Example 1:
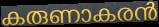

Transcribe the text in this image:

കരുണാകരൻ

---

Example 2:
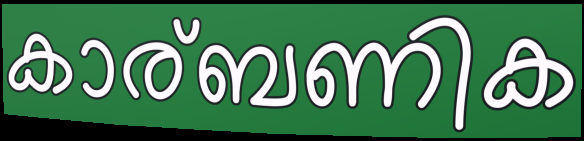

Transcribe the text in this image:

കാര്ബണിക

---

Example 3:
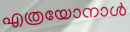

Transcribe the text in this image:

എത്രയോനാൾ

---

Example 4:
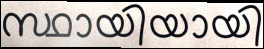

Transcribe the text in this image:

സ്ഥായിയായി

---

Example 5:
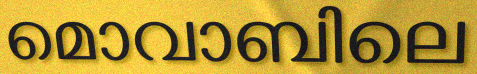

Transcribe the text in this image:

മൊവാബിലെ